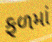
ફળમાં